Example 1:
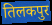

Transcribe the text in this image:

तिलकपुर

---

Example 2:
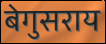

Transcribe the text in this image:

बेगुसराय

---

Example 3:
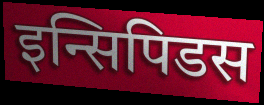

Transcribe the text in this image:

इन्सिपिडस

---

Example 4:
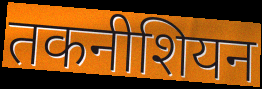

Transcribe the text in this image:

तकनीशियन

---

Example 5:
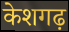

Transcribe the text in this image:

केशगढ़